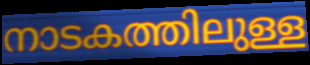
നാടകത്തിലുള്ള